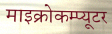
माइक्रोकम्प्यूटर